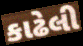
કાઢેલી